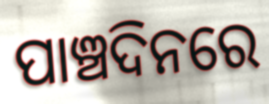
ପାଞ୍ଚଦିନରେ